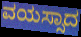
ವಯಸ್ಸಾದ